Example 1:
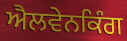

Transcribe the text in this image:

ਐਲਵੇਨਕਿੰਗ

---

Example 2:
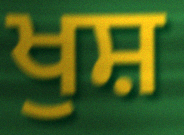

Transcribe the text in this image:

ਖੁਸ਼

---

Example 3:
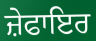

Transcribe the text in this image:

ਜ਼ੇਫਾਇਰ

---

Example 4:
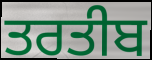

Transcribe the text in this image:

ਤਰਤੀਬ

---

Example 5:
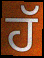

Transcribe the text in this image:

ਹੱ